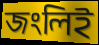
জংলিই